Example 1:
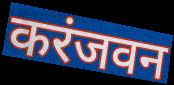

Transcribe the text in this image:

करंजवन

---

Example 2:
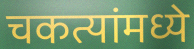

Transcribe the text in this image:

चकत्यांमध्ये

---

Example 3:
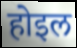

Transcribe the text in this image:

होइल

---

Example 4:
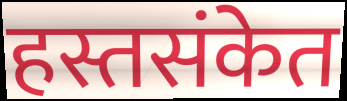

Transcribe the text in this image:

हस्तसंकेत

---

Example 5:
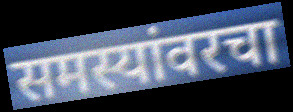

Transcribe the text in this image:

समस्यांवरचा